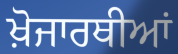
ਖ਼ੋਜਾਰਥੀਆਂ